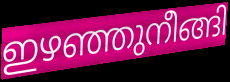
ഇഴഞ്ഞുനീങ്ങി